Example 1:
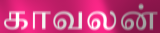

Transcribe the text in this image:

காவலன்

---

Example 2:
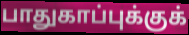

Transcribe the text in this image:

பாதுகாப்புக்குக்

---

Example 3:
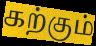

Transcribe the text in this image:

கற்கும்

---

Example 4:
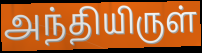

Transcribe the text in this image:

அந்தியிருள்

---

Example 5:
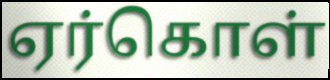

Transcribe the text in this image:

ஏர்கொள்